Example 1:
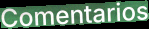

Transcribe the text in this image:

Comentarios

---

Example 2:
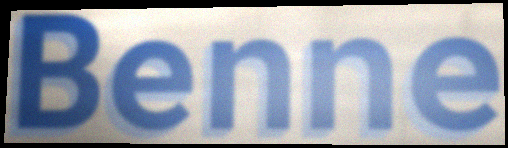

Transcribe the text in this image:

Benne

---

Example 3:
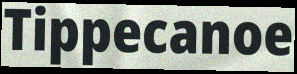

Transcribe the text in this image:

Tippecanoe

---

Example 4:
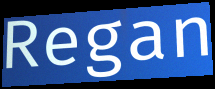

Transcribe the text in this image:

Regan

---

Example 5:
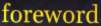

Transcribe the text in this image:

foreword